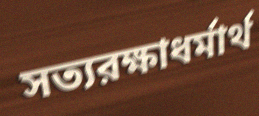
সত্যরক্ষাধর্মার্থ